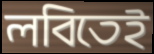
লবিতেই